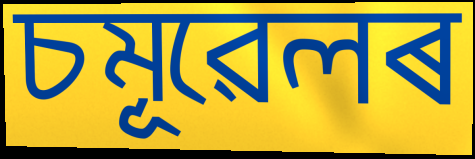
চমূৱেলৰ